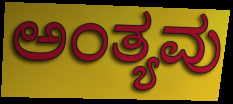
ಅಂತ್ಯವು